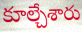
కూల్చేశారు